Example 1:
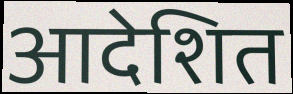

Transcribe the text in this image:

आदेशित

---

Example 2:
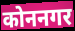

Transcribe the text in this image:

कोननगर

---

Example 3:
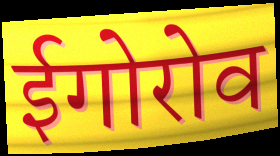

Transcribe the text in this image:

ईगोरोव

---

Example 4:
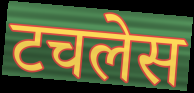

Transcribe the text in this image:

टचलेस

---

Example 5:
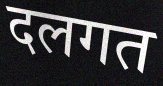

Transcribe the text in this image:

दलगत